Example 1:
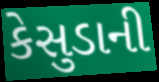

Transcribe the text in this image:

કેસુડાની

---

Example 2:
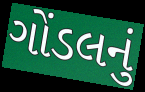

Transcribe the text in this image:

ગોંડલનું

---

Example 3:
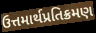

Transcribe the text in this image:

ઉત્તમાર્થપ્રતિક્રમણ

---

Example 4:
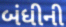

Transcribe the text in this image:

બંધીની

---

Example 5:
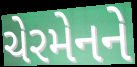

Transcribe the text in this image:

ચેરમેનને